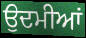
ਉਦਮੀਆਂ